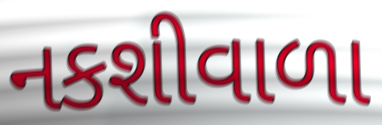
નકશીવાળા